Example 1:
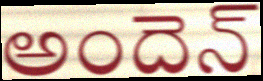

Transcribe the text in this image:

అందెన్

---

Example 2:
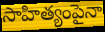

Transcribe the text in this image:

సాహిత్యంపైనా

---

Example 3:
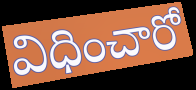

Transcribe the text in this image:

విధించారో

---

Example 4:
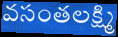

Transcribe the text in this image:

వసంతలక్ష్మి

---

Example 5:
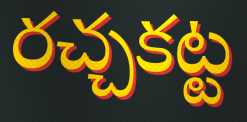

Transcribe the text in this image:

రచ్చకట్ట